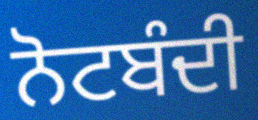
ਨੋਟਬੰਦੀ